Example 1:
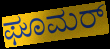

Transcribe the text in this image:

ಘೂಮರ್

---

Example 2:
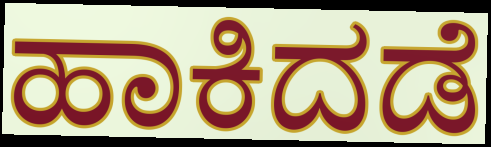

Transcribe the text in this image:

ಹಾಕಿದಡೆ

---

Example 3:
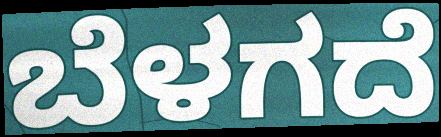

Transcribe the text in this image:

ಬೆಳಗದೆ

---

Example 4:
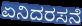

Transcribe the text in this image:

ಏನಿದರಸನೆ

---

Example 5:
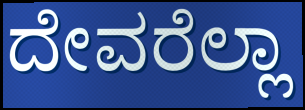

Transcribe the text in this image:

ದೇವರೆಲ್ಲಾ